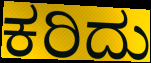
ಕರಿದು